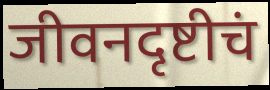
जीवनदृष्टीचं